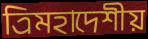
ত্রিমহাদেশীয়